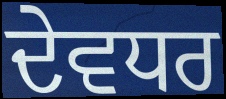
ਦੇਵਧਰ